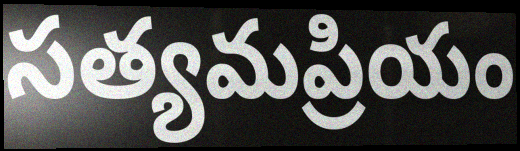
సత్యమప్రియం